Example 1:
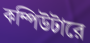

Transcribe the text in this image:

কম্পিউটারে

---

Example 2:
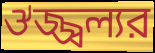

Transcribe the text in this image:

ঔজ্জ্বল্যর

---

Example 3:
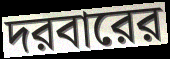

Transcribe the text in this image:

দরবারের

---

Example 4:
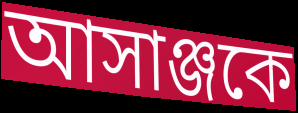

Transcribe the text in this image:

আসাঞ্জকে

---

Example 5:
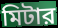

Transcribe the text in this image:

মিটার